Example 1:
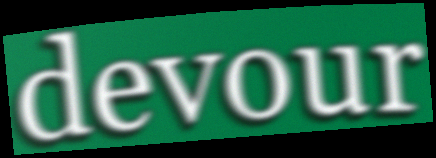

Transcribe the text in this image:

devour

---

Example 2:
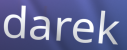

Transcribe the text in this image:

darek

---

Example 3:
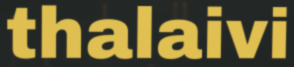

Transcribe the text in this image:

thalaivi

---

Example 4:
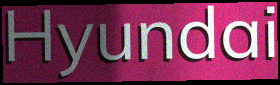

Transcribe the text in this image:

Hyundai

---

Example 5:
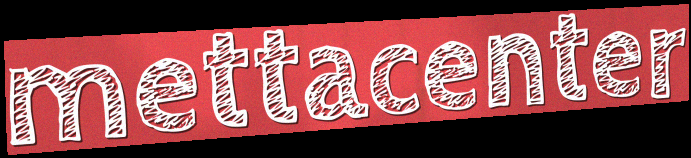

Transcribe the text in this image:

mettacenter